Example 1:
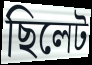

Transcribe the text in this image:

ছিলেট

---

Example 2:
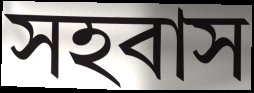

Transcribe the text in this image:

সহবাস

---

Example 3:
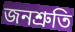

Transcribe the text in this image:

জনশ্ৰুতি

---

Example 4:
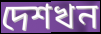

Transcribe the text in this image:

দেশখন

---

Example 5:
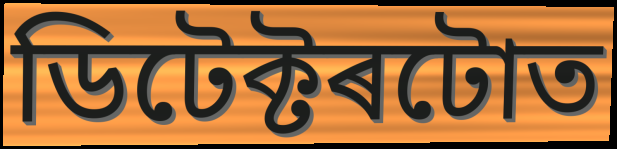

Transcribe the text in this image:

ডিটেক্টৰটোত